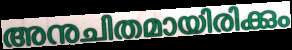
അനുചിതമായിരിക്കും